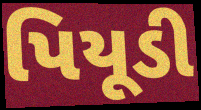
પિયૂડી